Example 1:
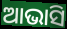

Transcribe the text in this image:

ଆଭାସି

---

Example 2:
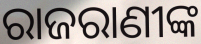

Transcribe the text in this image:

ରାଜରାଣୀଙ୍କ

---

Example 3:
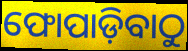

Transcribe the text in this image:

ଫୋପାଡ଼ିବାଠୁ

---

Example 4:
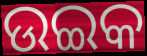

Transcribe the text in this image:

ଉଇକ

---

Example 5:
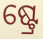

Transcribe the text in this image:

ଷ୍ଟ୍ରେ